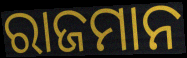
ରାଜମାନ